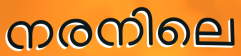
നരനിലെ